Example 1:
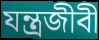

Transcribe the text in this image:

যন্ত্রজীবী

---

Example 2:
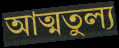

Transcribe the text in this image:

আত্মতুল্য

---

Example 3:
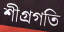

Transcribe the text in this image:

শীগ্রগতি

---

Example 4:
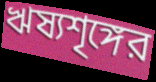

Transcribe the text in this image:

ঋষ্যশৃঙ্গের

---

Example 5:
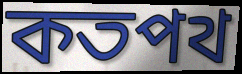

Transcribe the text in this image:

কতপথ